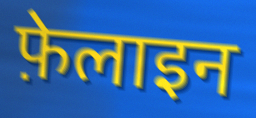
फ़ेलाइन